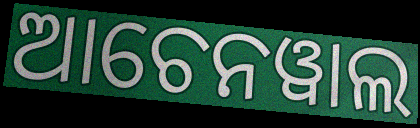
ଆଚେନୱାଲ